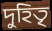
দুহিতৃ